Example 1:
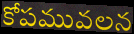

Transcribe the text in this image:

కోపమువలన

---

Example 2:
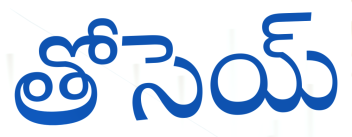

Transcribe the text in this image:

తోసెయ్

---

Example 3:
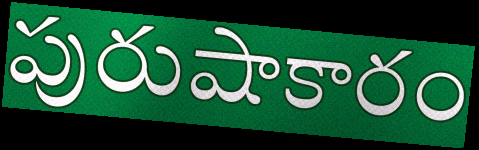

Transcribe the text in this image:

పురుషాకారం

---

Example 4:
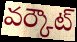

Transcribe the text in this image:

వర్కౌట్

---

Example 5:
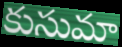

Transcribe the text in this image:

కుసుమా